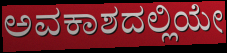
ಅವಕಾಶದಲ್ಲಿಯೇ